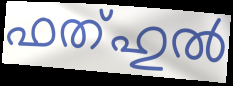
ഫത്ഹുൽ